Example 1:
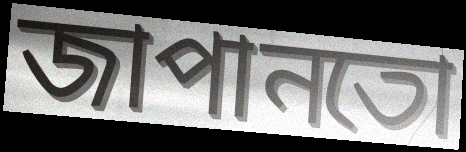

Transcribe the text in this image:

জাপানতো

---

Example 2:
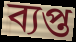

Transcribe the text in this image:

ব্যপ্ত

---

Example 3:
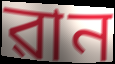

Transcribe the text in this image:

ৱান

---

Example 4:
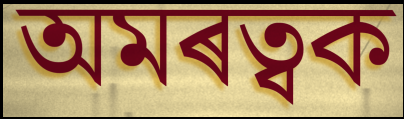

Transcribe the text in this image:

অমৰত্বক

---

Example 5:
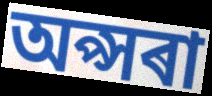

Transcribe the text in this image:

অপ্সৰা